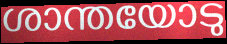
ശാന്തയോടു